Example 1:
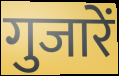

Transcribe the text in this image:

गुजारें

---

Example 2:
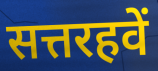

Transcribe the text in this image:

सत्तरहवें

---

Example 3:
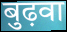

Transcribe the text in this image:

बुढ़वा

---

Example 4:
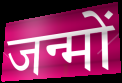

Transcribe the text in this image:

जन्मों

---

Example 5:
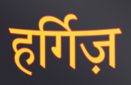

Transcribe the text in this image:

हर्गिज़